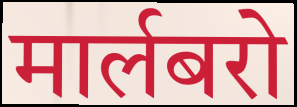
मार्लबरो